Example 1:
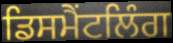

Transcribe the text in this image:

ਡਿਸਮੈਂਟਲਿੰਗ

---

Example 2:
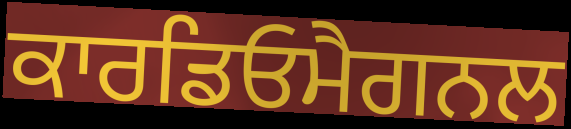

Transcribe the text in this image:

ਕਾਰਡਿਓਮੈਗਨਲ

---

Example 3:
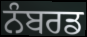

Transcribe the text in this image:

ਨੰਬਰਡ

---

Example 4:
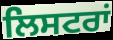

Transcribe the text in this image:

ਲਿਸਟਰਾਂ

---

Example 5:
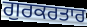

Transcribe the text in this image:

ਗੁਰਕਰਤਾਰ